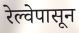
रेल्वेपासून